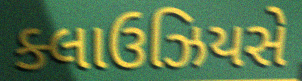
ક્લાઉઝિયસે